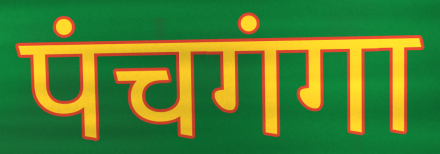
पंचगंगा